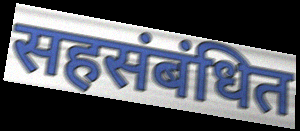
सहसंबंधित